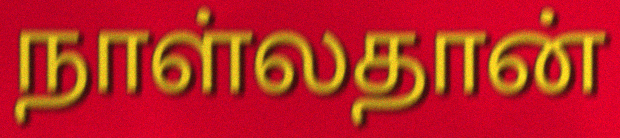
நாள்லதான்